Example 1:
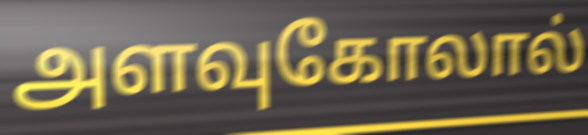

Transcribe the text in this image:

அளவுகோலால்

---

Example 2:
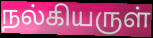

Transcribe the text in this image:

நல்கியருள்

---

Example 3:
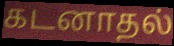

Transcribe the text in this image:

கடனாதல்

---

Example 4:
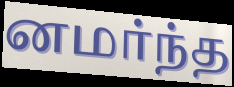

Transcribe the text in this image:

னமர்ந்த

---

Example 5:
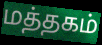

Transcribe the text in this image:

மத்தகம்